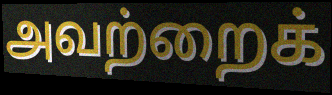
அவற்றைக்